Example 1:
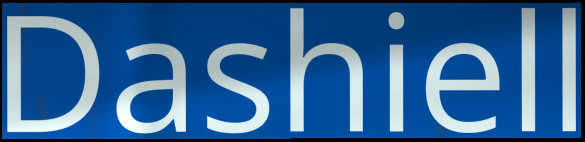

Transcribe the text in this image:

Dashiell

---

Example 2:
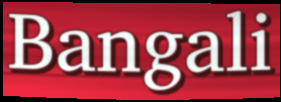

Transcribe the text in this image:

Bangali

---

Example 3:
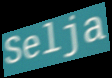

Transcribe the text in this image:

Selja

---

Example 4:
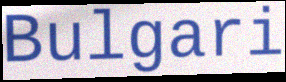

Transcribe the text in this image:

Bulgari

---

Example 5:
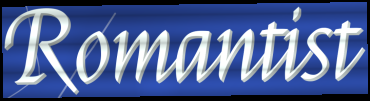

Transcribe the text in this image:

Romantist